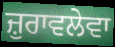
ਜ਼ੁਰਾਵਲੇਵਾ